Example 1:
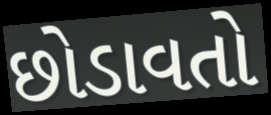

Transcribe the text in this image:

છોડાવતો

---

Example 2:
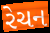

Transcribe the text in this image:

રેચન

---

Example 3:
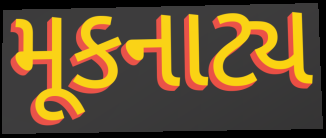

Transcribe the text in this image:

મૂકનાટ્ય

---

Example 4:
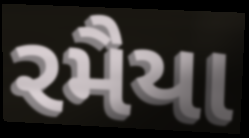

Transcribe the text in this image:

રમૈયા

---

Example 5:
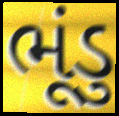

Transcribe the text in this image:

ભૂંડુ